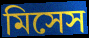
মিসেস